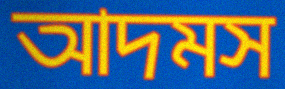
আদমস